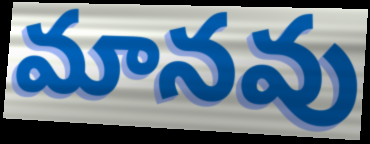
మానవు